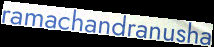
ramachandranusha